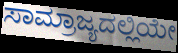
ಸಾಮ್ರಾಜ್ಯದಲ್ಲಿಯೇ